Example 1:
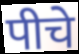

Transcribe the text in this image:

पीचे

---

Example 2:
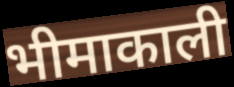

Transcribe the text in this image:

भीमाकाली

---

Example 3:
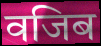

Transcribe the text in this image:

वजिब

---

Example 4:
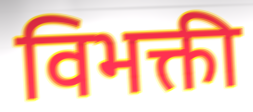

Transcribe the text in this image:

विभक्ती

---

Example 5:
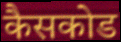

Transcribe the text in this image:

कैसकोड